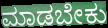
ಮಾಡಬೇಕು